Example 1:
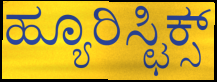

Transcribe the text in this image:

ಹ್ಯೂರಿಸ್ಟಿಕ್ಸ್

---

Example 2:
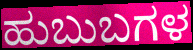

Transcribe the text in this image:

ಹುಬುಬಗಳ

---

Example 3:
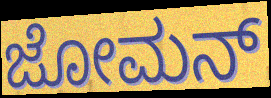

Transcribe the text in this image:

ಜೋಮನ್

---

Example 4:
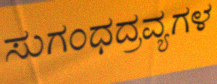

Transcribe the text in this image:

ಸುಗಂಧದ್ರವ್ಯಗಳ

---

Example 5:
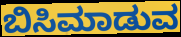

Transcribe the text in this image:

ಬಿಸಿಮಾಡುವ